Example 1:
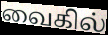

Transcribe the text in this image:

வைகில்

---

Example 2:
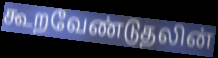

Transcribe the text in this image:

கூறவேண்டுதலின்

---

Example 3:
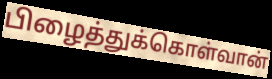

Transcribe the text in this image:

பிழைத்துக்கொள்வான்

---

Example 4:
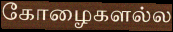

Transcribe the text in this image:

கோழைகளல்ல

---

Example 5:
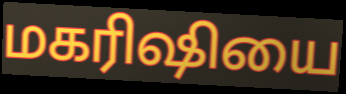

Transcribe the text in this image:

மகரிஷியை